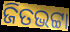
ଜିତଭଟ୍ଟା